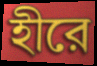
হীরে